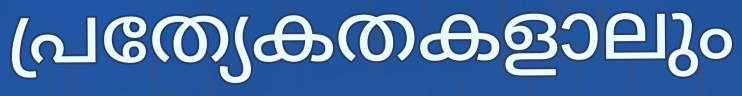
പ്രത്യേകതകളാലും